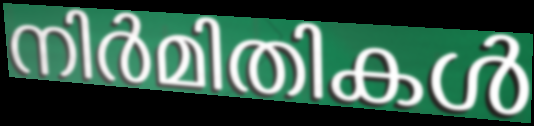
നിർമിതികൾ